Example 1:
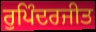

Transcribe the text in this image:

ਰੁਪਿੰਦਰਜੀਤ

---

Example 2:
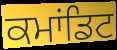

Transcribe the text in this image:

ਕਮਾਂਡਿਟ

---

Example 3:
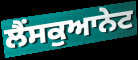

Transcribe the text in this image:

ਲੈਂਸਕੁਆਨੇਟ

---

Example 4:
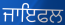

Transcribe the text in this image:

ਜਾਇਫਲ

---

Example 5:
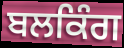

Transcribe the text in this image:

ਬਲਕਿੰਗ